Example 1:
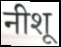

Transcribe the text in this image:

नीशू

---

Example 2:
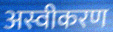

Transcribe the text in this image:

अस्वीकरण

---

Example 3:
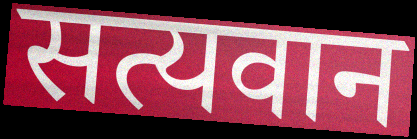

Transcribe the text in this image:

सत्यवान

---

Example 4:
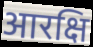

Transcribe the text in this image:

आरक्षि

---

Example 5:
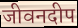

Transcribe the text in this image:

जीवनदीप